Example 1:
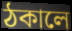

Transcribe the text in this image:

ঠকালে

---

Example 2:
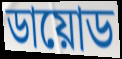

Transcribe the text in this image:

ডায়োড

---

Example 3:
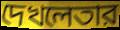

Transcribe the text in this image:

দেখলেতার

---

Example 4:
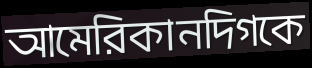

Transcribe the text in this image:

আমেরিকানদিগকে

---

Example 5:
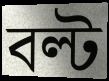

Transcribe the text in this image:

বল্ট